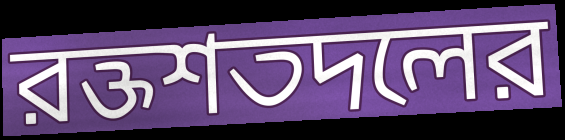
রক্তশতদলের